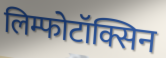
लिम्फोटॉक्सिन